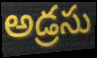
అడ్రసు